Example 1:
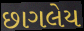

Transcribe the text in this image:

છાગલેય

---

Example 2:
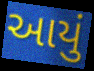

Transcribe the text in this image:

આયું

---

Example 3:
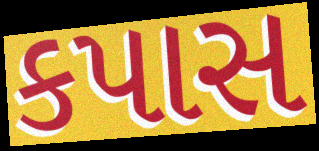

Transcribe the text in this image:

કપાસ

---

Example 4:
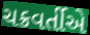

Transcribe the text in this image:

ચક્રવર્તીએ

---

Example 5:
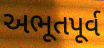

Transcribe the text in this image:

અભૂતપૂર્વ